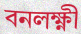
বনলক্ষ্ণী